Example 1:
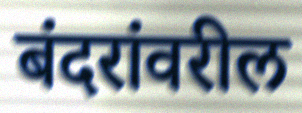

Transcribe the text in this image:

बंदरांवरील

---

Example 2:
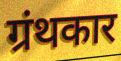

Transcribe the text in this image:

ग्रंथकार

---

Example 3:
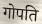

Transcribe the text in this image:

गोपति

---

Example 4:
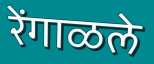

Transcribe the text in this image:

रेंगाळले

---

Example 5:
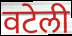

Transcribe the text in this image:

वटेली